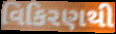
વિકિરણથી